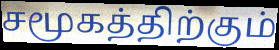
சமூகத்திற்கும்